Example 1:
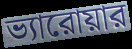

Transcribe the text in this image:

ভ্যারোয়ার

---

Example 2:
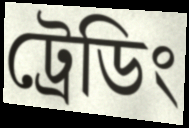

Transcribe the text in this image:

ট্রেডিং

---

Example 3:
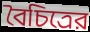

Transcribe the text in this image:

বৈচিত্রের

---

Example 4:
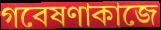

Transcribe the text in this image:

গবেষণাকাজে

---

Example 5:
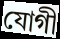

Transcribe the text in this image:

যোগী